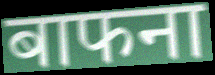
बाफना